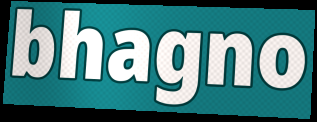
bhagno